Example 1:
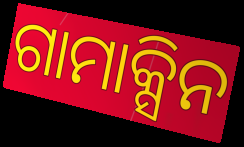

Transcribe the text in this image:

ଗାମାକ୍ସିନ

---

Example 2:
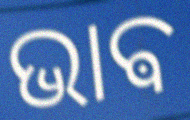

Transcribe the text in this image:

ଭାଵ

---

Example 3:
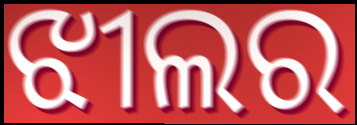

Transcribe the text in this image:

ଝୀଲର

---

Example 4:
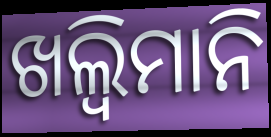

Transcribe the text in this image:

ଖଲ୍ୱିମାନି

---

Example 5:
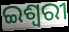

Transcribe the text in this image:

ଇଶ୍ୱରୀ